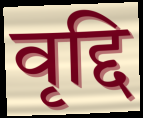
वृद्दि